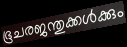
ഭൂചരജന്തുക്കൾക്കും